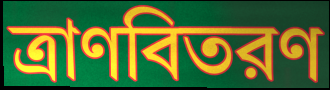
ত্রাণবিতরণ